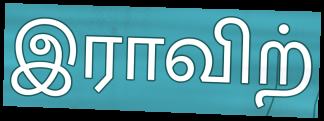
இராவிற்